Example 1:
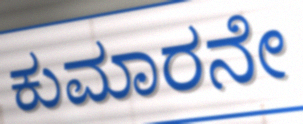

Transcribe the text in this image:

ಕುಮಾರನೇ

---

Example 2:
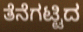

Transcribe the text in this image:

ತೆನೆಗಟ್ಟಿದ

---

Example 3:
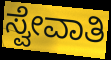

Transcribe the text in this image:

ಸ್ವೇವಾತಿ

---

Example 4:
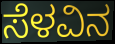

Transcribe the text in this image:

ಸೆಳವಿನ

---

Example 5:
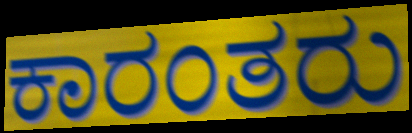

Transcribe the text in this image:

ಕಾರಂತರು